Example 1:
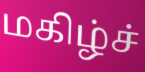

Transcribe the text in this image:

மகிழ்ச்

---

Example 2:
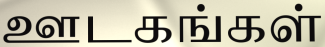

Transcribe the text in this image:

ஊடகங்கள்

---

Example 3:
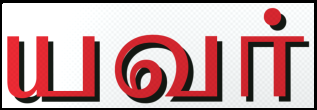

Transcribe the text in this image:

யவர்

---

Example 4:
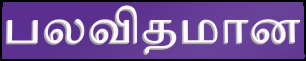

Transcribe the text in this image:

பலவிதமான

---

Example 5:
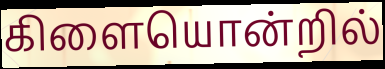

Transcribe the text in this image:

கிளையொன்றில்